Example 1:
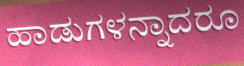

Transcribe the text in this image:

ಹಾಡುಗಳನ್ನಾದರೂ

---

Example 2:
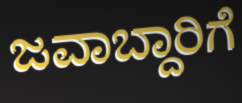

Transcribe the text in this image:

ಜವಾಬ್ದಾರಿಗೆ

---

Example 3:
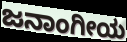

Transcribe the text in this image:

ಜನಾಂಗೀಯ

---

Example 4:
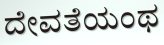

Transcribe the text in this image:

ದೇವತೆಯಂಥ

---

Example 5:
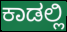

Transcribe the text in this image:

ಕಾಡಲ್ಲಿ